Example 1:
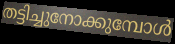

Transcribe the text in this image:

തട്ടിച്ചുനോക്കുമ്പോൾ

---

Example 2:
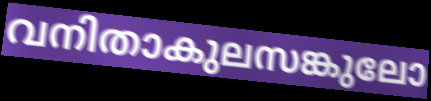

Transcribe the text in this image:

വനിതാകുലസങ്കുലോ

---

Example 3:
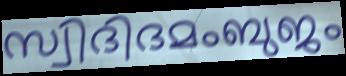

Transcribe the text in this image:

സ്വിദിദമംബുജം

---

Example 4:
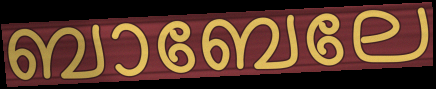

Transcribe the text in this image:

ബാബേലേ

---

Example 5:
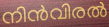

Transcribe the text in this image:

നിൻവിരൽ